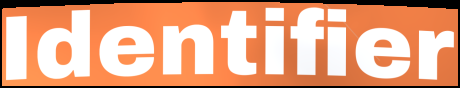
Identifier